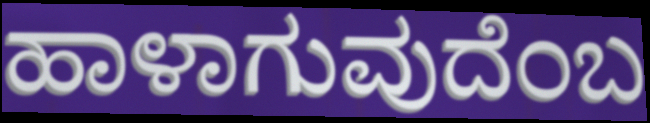
ಹಾಳಾಗುವುದೆಂಬ